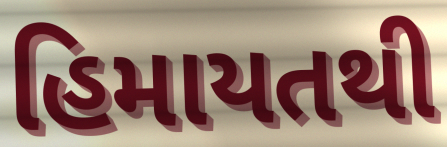
હિમાયતથી